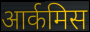
आर्कमिस